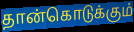
தான்கொடுக்கும்